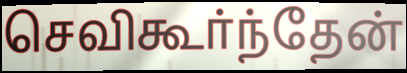
செவிகூர்ந்தேன்